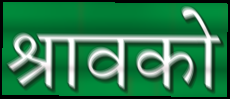
श्रावको